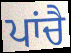
ਪਾਂਚੈ